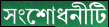
সংশোধনীটি